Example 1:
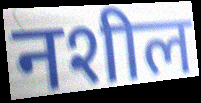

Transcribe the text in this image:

नशील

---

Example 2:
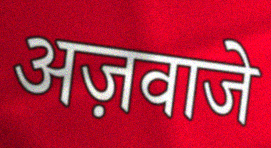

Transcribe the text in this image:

अज़वाजे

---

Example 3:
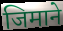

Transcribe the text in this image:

जिमाने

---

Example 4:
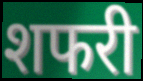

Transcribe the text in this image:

शफरी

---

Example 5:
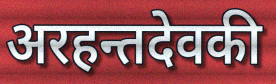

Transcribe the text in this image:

अरहन्तदेवकी